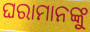
ଘରାମାନଙ୍କୁ